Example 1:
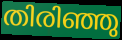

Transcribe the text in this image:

തിരിഞ്ഞു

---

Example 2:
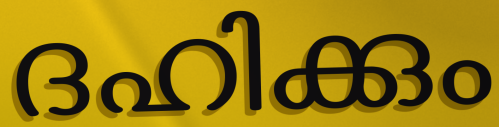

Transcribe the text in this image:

ദഹിക്കും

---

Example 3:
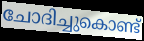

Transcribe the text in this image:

ചോദിച്ചുകൊണ്ട്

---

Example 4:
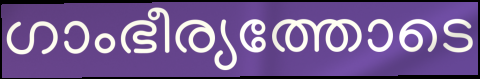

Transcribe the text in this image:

ഗാംഭീര്യത്തോടെ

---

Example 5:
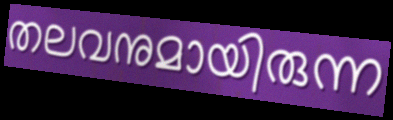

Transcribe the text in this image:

തലവനുമായിരുന്ന